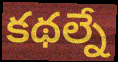
కథల్నే